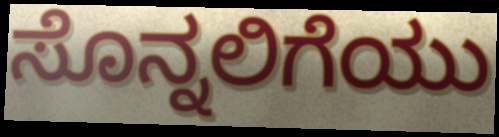
ಸೊನ್ನಲಿಗೆಯು